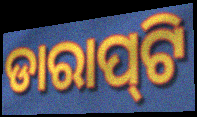
ଡାରାପ୍‌ଟି